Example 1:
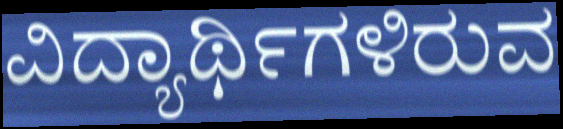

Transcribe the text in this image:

ವಿದ್ಯಾರ್ಥಿಗಳಿರುವ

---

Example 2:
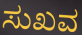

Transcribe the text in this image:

ಸುಖವ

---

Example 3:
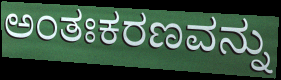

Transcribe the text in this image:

ಅಂತಃಕರಣವನ್ನು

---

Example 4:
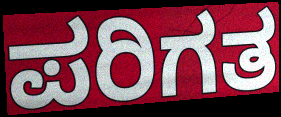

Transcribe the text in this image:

ಪರಿಗತ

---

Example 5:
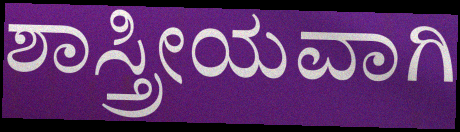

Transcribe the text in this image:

ಶಾಸ್ತ್ರೀಯವಾಗಿ